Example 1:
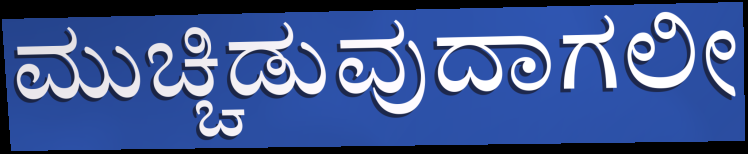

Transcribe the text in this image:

ಮುಚ್ಚಿಡುವುದಾಗಲೀ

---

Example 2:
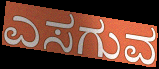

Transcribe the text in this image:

ಎಸಗುವ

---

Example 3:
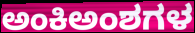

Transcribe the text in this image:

ಅಂಕಿಅಂಶಗಳ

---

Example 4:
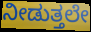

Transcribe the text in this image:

ನೀಡುತ್ತಲೇ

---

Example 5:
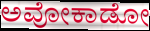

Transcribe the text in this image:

ಅವೋಕಾಡೋ